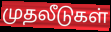
முதலீடுகள்